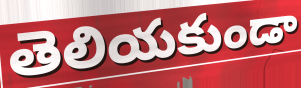
తెలియకుండా